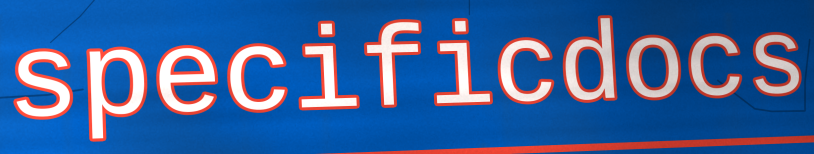
specificdocs